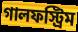
গালফস্ট্রিম